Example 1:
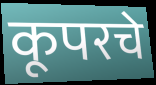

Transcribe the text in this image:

कूपरचे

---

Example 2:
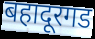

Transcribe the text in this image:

बहादूरगड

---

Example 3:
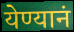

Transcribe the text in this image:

येण्यानं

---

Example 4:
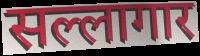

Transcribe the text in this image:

सल्‍लागार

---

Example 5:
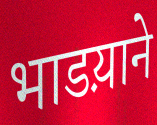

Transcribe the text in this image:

भाडय़ाने